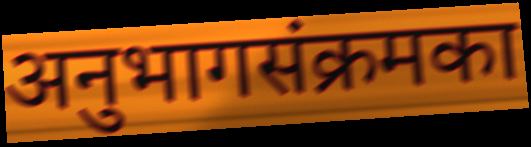
अनुभागसंक्रमका